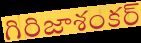
గిరిజాశంకర్